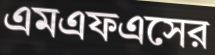
এমএফএসের